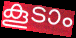
കൂടാം